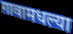
गावामधल्या